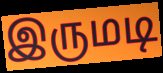
இருமடி